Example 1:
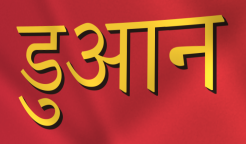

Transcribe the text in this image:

डुआन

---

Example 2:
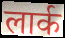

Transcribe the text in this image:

लार्क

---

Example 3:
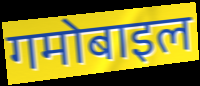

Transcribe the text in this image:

गमोबाइल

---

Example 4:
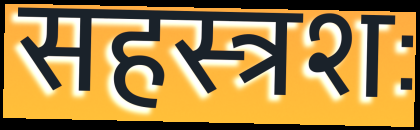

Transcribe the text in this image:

सहस्त्रशः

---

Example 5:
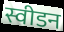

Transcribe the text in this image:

स्वीडन